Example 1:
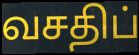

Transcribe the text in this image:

வசதிப்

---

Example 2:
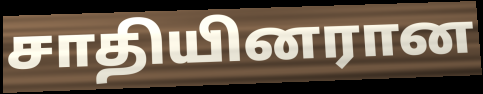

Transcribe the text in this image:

சாதியினரான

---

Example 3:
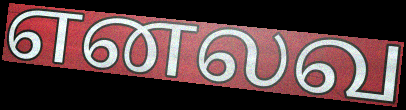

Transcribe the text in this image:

எனலவ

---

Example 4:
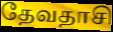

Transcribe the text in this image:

தேவதாசி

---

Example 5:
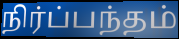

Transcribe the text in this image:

நிர்ப்பந்தம்